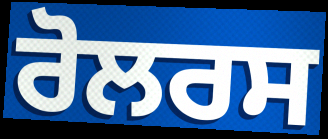
ਰੋਲਰਸ